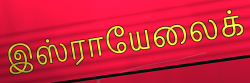
இஸ்ராயேலைக்